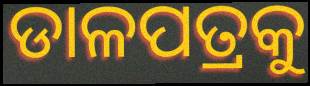
ଡାଳପତ୍ରକୁ